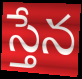
స్తేన